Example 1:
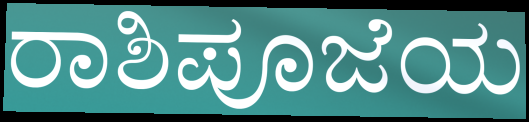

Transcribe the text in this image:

ರಾಶಿಪೂಜೆಯ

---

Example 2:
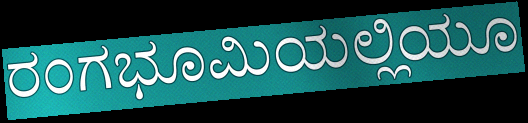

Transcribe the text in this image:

ರಂಗಭೂಮಿಯಲ್ಲಿಯೂ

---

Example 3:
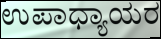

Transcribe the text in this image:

ಉಪಾಧ್ಯಾಯರ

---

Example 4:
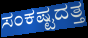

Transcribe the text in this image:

ಸಂಕಷ್ಟದತ್ತ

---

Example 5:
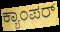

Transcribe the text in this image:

ಕ್ಯಾಂಪರ್